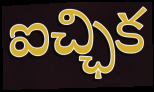
ఐచ్ఛిక